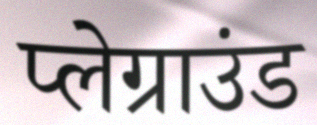
प्लेग्राउंड